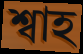
শ্বাহ